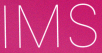
IMS